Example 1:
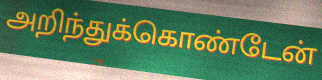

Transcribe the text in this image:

அறிந்துக்கொண்டேன்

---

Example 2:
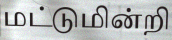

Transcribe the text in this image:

மட்டுமின்றி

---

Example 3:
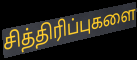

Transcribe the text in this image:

சித்திரிப்புகளை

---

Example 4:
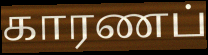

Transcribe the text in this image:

காரணப்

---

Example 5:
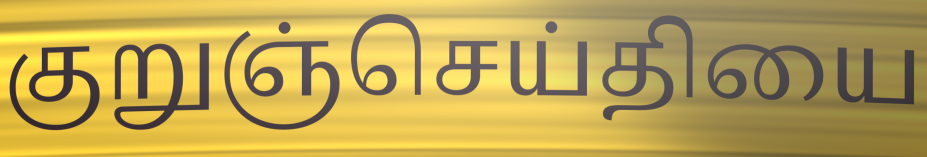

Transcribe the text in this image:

குறுஞ்செய்தியை